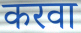
करवा